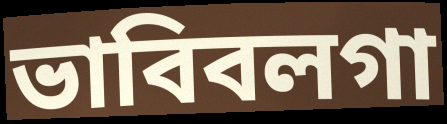
ভাবিবলগা